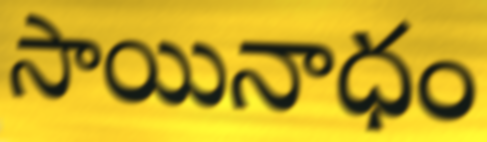
సాయినాధం